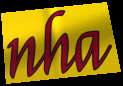
nha